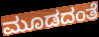
ಮೂಡದಂತೆ